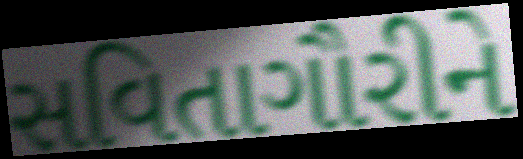
સવિતાગૌરીને